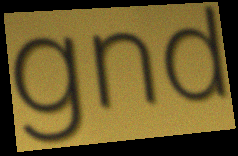
gnd